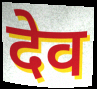
देव